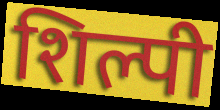
शिल्पी